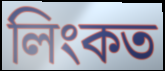
লিংকত